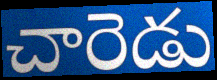
చారెడు